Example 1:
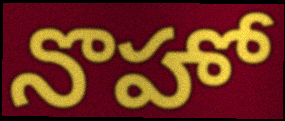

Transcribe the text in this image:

నొహో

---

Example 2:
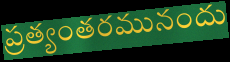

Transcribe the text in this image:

ప్రత్యంతరమునందు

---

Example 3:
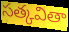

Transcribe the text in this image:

సత్కవితా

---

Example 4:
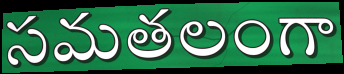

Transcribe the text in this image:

సమతలంగా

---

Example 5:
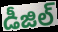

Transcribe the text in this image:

డీజిల్